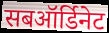
सबऑर्डिनेट